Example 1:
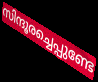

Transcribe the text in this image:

സിന്ദൂരച്ചെപ്പുണ്ടേ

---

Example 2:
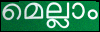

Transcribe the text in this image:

മെല്ലാം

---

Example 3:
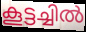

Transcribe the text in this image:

കൂട്ടച്ചിൽ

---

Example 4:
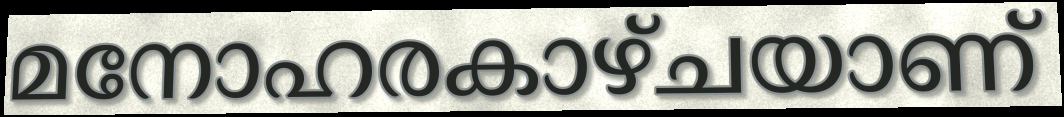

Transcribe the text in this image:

മനോഹരകാഴ്ചയാണ്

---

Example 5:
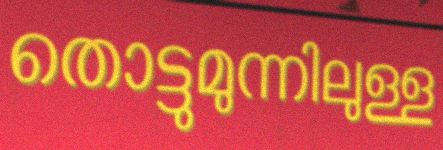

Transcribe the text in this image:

തൊട്ടുമുന്നിലുള്ള